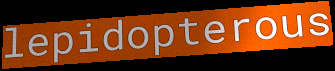
lepidopterous